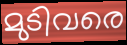
മുടിവരെ